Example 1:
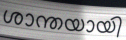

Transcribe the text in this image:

ശാന്തയായി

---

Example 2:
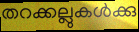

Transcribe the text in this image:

തറക്കല്ലുകൾക്കു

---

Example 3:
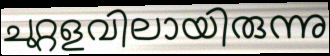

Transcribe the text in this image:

ചുറ്റളവിലായിരുന്നു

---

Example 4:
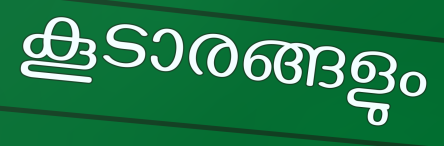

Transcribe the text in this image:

കൂടാരങ്ങളും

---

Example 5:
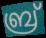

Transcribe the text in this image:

ബ്ര്